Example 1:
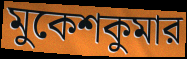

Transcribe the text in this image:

মুকেশকুমার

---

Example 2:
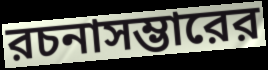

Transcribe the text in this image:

রচনাসম্ভারের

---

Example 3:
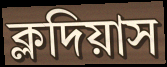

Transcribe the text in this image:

ক্লদিয়াস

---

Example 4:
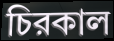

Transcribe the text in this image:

চিরকাল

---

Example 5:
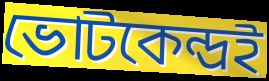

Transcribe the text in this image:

ভোটকেন্দ্রই